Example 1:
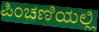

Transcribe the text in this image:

ಪಿಂಚಣಿಯಲ್ಲಿ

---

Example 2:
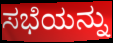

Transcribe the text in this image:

ಸಭೆಯನ್ನು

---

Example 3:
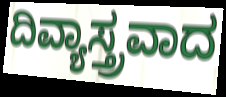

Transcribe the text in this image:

ದಿವ್ಯಾಸ್ತ್ರವಾದ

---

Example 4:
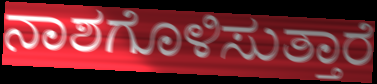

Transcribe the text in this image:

ನಾಶಗೊಳಿಸುತ್ತಾರೆ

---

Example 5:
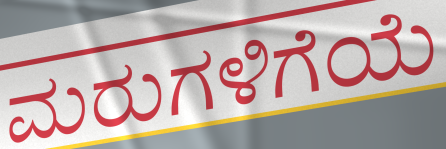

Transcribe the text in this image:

ಮರುಗಳಿಗೆಯೆ